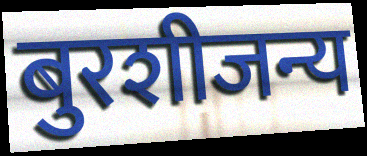
बुरशीजन्य